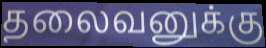
தலைவனுக்கு